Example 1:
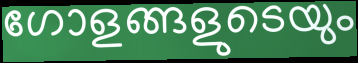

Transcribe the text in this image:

ഗോളങ്ങളുടെയും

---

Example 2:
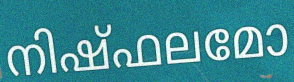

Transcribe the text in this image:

നിഷ്ഫലമോ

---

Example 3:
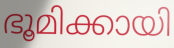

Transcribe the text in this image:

ഭൂമിക്കായി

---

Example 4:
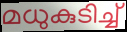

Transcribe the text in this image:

മധുകുടിച്ച്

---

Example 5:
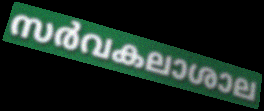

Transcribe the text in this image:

സർവകലാശാല